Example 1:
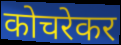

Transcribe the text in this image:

कोचरेकर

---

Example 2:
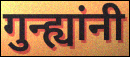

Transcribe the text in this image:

गुन्ह्यांनी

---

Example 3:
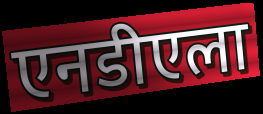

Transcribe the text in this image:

एनडीएला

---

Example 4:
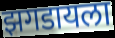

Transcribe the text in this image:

झगडायला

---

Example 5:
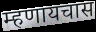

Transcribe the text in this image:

म्हणायचास